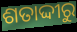
ଶତାଦ୍ଦୀରୁ